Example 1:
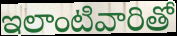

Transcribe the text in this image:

ఇలాంటివారితో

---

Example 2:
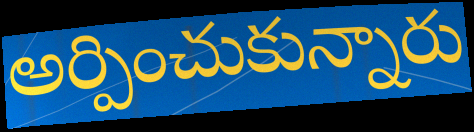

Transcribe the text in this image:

అర్పించుకున్నారు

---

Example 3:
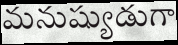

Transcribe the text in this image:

మనుష్యుడుగా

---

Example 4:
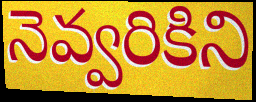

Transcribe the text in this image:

నెవ్వరికిని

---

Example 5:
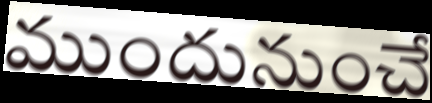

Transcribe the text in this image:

ముందునుంచే